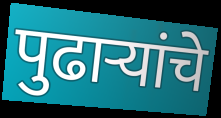
पुढाऱ्यांचे